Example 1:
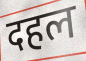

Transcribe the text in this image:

दहल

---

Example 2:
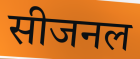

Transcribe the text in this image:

सीजनल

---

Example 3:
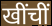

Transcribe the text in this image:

खींचीं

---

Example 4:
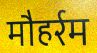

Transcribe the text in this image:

मौहर्रम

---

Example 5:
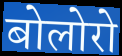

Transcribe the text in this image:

बोलोरो